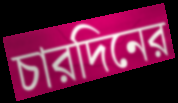
চারদিনের